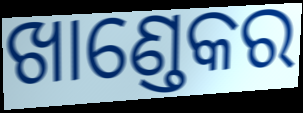
ଖାଣ୍ଡେକର